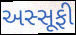
અસ્સૂફી